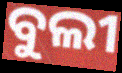
ବୁଲୀ